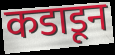
कडाडून